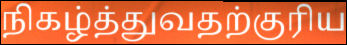
நிகழ்த்துவதற்குரிய